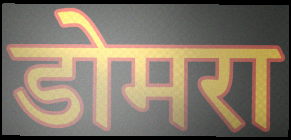
डोमरा